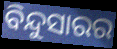
ବିନ୍ଦୁସାରର